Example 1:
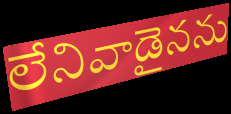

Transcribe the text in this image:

లేనివాడైనను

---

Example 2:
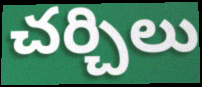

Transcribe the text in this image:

చర్చిలు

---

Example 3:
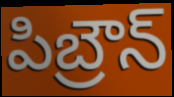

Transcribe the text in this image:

పిబ్రౌన్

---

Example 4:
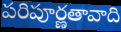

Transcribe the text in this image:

పరిపూర్ణతావాది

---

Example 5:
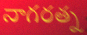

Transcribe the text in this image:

నాగరత్న